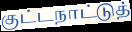
குட்டநாட்டுத்